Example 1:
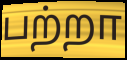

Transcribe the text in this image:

பற்றா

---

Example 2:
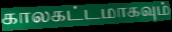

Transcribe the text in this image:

காலகட்டமாகவும்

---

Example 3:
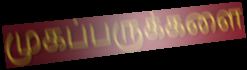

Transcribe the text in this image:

முகப்பருக்களை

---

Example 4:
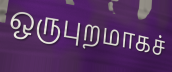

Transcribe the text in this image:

ஒருபுறமாகச்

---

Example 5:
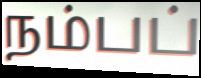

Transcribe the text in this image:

நம்பப்